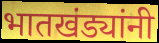
भातखंड्यांनी